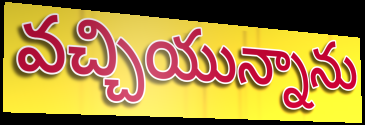
వచ్చియున్నాను